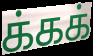
க்கக்